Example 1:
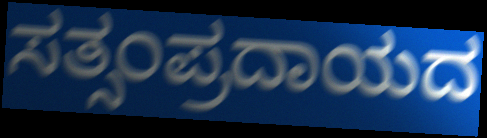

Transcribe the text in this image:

ಸತ್ಸಂಪ್ರದಾಯದ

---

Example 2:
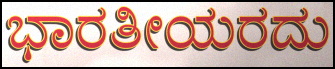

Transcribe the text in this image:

ಭಾರತೀಯರದು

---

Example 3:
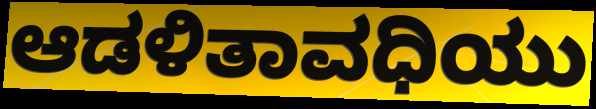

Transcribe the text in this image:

ಆಡಳಿತಾವಧಿಯು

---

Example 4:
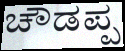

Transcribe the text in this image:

ಚೌಡಪ್ಪ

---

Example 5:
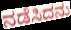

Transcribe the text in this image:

ನಡೆಸಿದನು